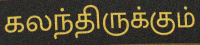
கலந்திருக்கும்